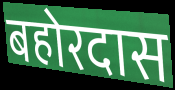
बहोरदास